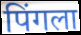
पिंगला